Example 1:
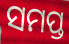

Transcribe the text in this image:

ସମପ୍ତ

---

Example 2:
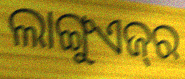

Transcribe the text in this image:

ଲାଙ୍ଗୁଏଜ୍‌ର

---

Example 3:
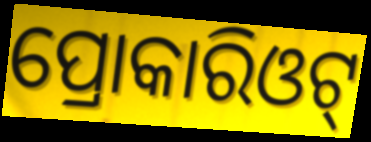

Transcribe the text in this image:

ପ୍ରୋକାରିଓଟ୍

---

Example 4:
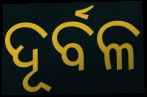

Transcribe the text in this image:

ଦୂର୍ବଳ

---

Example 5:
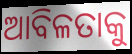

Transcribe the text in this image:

ଆବିଳତାକୁ